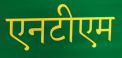
एनटीएम